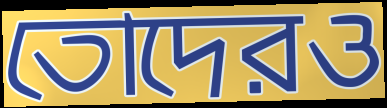
তোদেরও